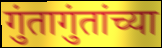
गुंतागुंतांच्या